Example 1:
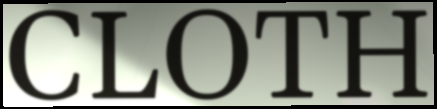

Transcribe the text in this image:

CLOTH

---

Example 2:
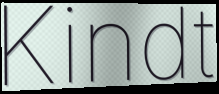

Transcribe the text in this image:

Kindt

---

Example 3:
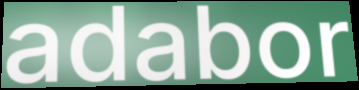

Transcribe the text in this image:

adabor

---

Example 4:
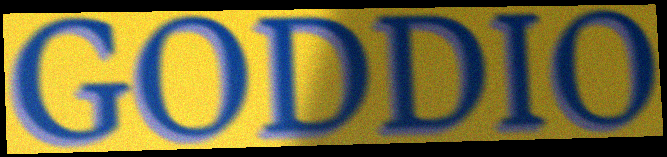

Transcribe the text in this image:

GODDIO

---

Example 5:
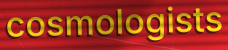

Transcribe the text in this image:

cosmologists